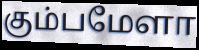
கும்பமேளா